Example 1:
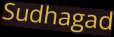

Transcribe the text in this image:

Sudhagad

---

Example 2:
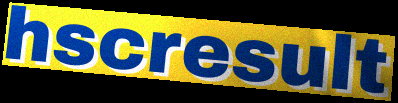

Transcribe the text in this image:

hscresult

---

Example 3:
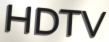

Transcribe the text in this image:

HDTV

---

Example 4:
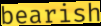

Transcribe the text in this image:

bearish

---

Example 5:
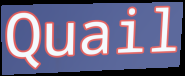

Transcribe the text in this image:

Quail